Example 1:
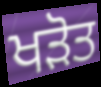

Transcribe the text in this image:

ਖੜੋਤ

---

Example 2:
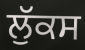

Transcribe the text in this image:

ਲੁੱਕਸ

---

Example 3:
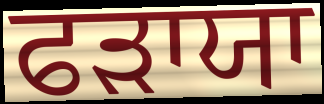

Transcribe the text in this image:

ਫੜਾਯਾ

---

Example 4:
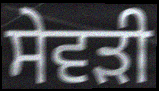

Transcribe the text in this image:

ਸੇਵੜੀ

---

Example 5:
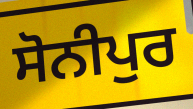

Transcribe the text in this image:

ਸੋਨੀਪੁਰ